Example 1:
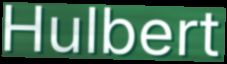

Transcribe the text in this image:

Hulbert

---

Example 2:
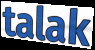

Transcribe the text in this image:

talak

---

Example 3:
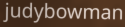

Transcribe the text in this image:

judybowman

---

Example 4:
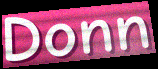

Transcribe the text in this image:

Donn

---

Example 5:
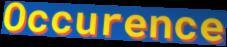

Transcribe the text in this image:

Occurence